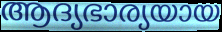
ആദ്യഭാര്യയായ